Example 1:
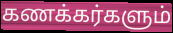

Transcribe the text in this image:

கணக்கர்களும்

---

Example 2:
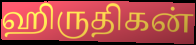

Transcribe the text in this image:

ஹிருதிகன்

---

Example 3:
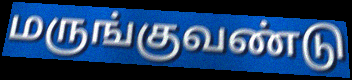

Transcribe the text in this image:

மருங்குவண்டு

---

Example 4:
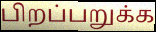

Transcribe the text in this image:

பிறப்பறுக்க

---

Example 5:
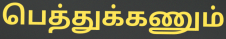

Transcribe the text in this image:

பெத்துக்கணும்